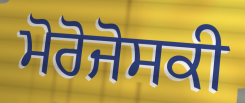
ਮੋਰੋਜੋਸਕੀ